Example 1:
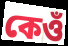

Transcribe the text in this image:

কেওঁ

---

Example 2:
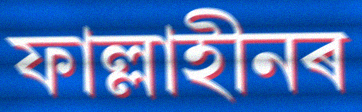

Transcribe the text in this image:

ফাল্লাহীনৰ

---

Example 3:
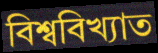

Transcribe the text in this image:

বিশ্ববিখ্যাত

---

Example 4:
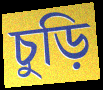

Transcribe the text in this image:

চুড়ি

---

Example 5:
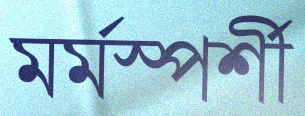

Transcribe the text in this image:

মৰ্মস্পৰ্শী